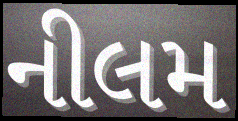
નીલમ